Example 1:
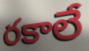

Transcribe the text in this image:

రకాలే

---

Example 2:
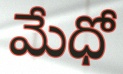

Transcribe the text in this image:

మేధో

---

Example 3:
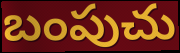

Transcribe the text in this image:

బంపుచు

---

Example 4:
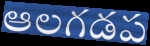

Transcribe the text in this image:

ఆలగడప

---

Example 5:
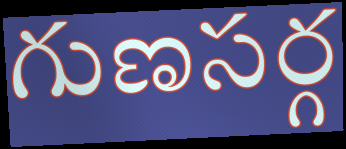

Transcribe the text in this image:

గుణసర్గ